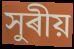
সুৰীয়